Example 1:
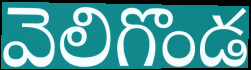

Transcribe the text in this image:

వెలిగొండ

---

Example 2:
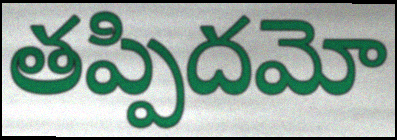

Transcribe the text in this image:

తప్పిదమో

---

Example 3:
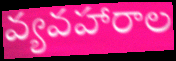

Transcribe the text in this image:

వ్యవహారాల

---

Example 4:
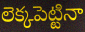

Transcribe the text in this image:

లెక్కపెట్టినా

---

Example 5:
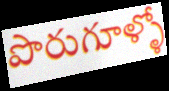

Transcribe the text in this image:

పొరుగూళ్ళో